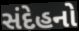
સંદેહનો